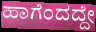
ಹಾಗೆಂದದ್ದೇ